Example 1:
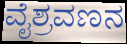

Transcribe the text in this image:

ವೈಶ್ರವಣನ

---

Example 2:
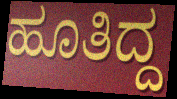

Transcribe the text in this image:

ಹೂತಿದ್ದ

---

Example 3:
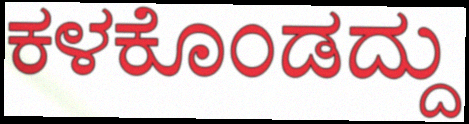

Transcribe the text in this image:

ಕಳಕೊಂಡದ್ದು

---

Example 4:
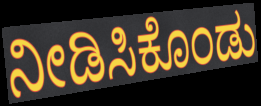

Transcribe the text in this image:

ನೀಡಿಸಿಕೊಂಡು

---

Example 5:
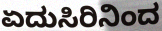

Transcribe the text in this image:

ಏದುಸಿರಿನಿಂದ